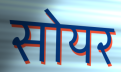
सोयर